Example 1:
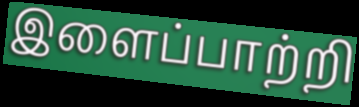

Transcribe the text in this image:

இளைப்பாற்றி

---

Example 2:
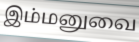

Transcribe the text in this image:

இம்மனுவை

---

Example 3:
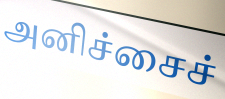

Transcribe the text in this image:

அனிச்சைச்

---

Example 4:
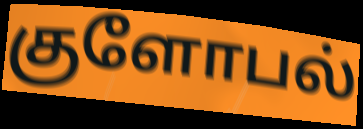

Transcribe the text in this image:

குளோபல்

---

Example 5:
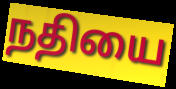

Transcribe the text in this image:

நதியை